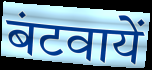
बंटवायें